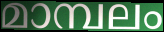
മാമ്പലം